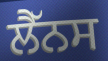
ਲੈੱਨਸ